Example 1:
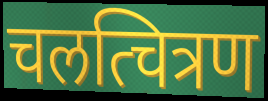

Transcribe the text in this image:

चलत्चित्रण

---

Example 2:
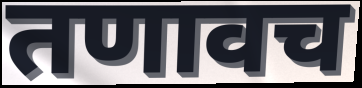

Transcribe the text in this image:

तणावच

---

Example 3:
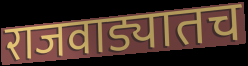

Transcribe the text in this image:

राजवाड्यातच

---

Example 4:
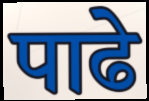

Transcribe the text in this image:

पाढे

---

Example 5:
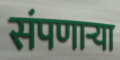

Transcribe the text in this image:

संपणाऱ्या